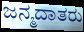
ಜನ್ಮದಾತರು